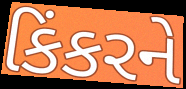
કિંકરને